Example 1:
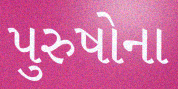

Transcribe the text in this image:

પુરુષોના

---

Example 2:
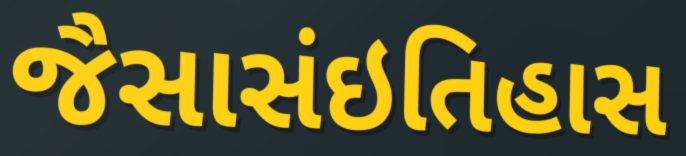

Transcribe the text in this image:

જૈસાસંઇતિહાસ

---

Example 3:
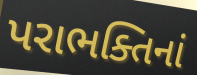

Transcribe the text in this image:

પરાભક્તિનાં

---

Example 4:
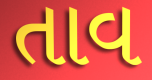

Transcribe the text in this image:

તાવ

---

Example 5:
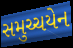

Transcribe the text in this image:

સમુચ્ચયેન